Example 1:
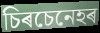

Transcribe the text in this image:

চিৰচেনেহৰ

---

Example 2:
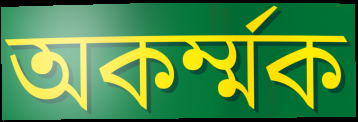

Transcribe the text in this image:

অকৰ্ম্মক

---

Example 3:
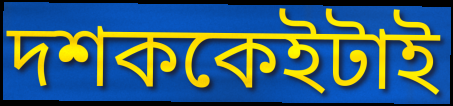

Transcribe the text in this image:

দশককেইটাই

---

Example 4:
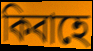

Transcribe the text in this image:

কিবাহে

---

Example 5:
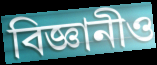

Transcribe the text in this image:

বিজ্ঞানীও